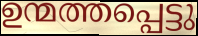
ഉന്മത്തപ്പെട്ടു